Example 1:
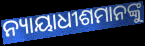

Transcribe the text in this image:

ନ୍ୟାୟାଧୀଶମାନଙ୍କୁ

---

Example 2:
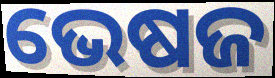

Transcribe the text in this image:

ଭେଷଜ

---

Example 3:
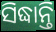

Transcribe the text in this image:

ସିଦ୍ଧାନ୍ତି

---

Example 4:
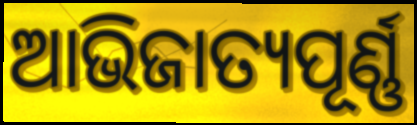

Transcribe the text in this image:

ଆଭିଜାତ୍ୟପୂର୍ଣ୍ଣ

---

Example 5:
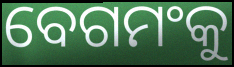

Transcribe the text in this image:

ବେଗମଂକୁ